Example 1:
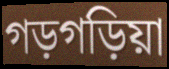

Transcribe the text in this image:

গড়গড়িয়া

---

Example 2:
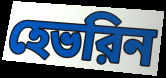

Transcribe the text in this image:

হেভরিন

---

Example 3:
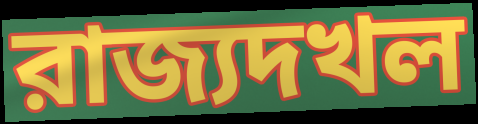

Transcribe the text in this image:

রাজ্যদখল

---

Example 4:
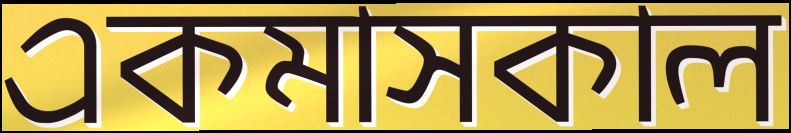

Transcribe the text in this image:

একমাসকাল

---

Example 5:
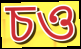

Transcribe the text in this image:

চও